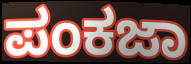
ಪಂಕಜಾ